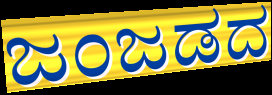
ಜಂಜಡದ